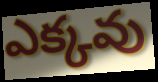
ఎక్కవు